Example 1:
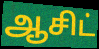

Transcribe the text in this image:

ஆசிட்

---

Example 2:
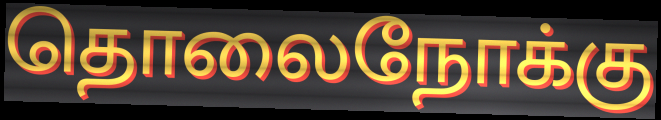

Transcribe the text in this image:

தொலைநோக்கு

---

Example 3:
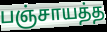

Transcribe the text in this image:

பஞ்சாயத்த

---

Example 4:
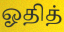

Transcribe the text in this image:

ஓதித்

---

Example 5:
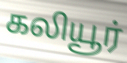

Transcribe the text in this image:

கலியூர்